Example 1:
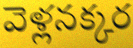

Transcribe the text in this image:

వెళ్లనక్కర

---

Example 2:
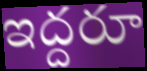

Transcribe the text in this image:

ఇద్దరూ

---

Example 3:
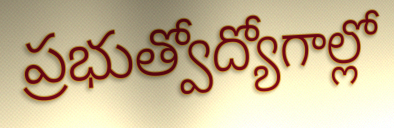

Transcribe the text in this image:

ప్రభుత్వోద్యోగాల్లో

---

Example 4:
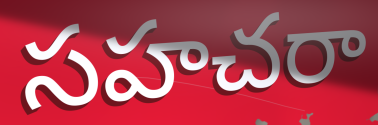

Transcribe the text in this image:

సహచరా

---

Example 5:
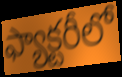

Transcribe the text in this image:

ఫ్యాక్టరీలో